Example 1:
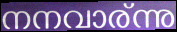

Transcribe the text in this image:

നനവാര്ന്നു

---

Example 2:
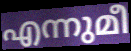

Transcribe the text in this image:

എന്നുമീ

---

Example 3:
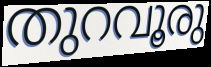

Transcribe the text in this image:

തുറവൂരു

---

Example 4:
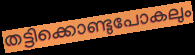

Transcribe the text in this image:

തട്ടിക്കൊണ്ടുപോകലും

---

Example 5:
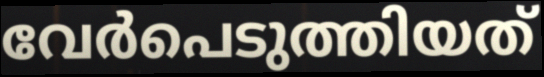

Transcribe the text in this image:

വേർപെടുത്തിയത്